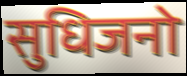
सुधिजनो